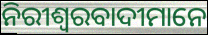
ନିରୀଶ୍ବରବାଦୀମାନେ